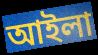
আইলা